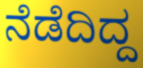
ನೆಡೆದಿದ್ದ